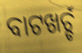
ବାଟଖର୍ଚ୍ଚ